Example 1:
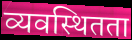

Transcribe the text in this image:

व्यवस्थितता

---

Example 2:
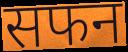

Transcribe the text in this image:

सफन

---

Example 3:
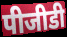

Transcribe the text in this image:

पीजीडी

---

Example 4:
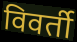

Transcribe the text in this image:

विवर्ती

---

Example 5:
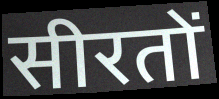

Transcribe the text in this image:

सीरतों